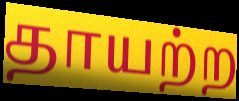
தாயற்ற